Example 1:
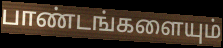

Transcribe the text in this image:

பாண்டங்களையும்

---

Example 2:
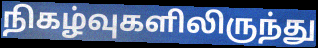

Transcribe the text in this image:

நிகழ்வுகளிலிருந்து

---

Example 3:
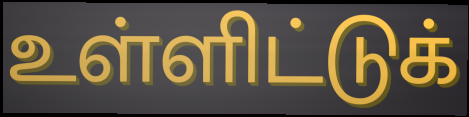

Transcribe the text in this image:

உள்ளிட்டுக்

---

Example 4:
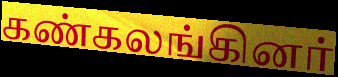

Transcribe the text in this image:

கண்கலங்கினர்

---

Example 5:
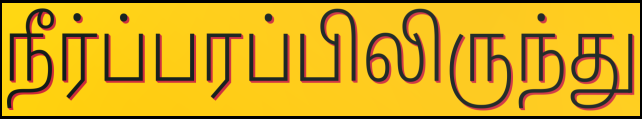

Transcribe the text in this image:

நீர்ப்பரப்பிலிருந்து